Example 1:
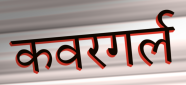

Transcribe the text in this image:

कवरगर्ल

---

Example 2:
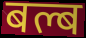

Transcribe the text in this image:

बल्ब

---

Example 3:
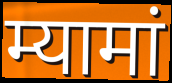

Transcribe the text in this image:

म्यामां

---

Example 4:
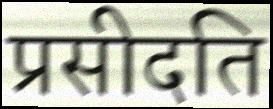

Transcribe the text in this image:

प्रसीदति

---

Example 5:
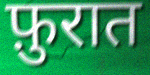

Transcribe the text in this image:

फ़ुरात